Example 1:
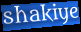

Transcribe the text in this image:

shakiye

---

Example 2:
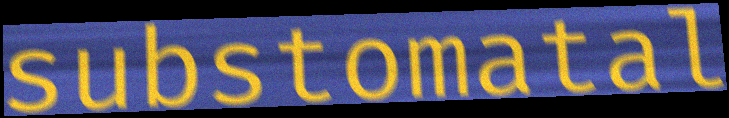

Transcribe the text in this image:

substomatal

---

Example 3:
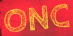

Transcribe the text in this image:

ONC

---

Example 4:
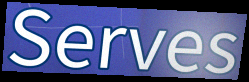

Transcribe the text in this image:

Serves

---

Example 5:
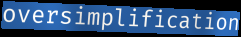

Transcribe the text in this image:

oversimplification